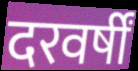
दरवर्षीं